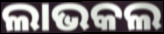
ଲାଭକଲ